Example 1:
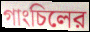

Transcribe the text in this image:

গাংচিলের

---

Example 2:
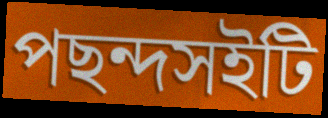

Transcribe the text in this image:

পছন্দসইটি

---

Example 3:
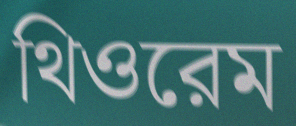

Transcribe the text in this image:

থিওরেম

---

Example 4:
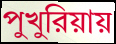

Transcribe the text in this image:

পুখুরিয়ায়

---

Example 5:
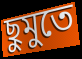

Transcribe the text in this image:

ছুমুতে